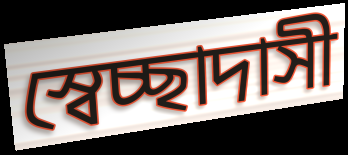
স্বেচ্ছাদাসী